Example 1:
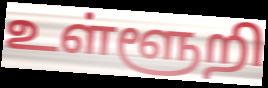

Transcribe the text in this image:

உள்ளூறி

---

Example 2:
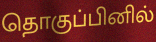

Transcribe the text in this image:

தொகுப்பினில்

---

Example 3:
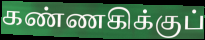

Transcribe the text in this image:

கண்ணகிக்குப்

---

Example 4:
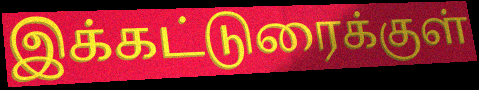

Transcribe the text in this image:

இக்கட்டுரைக்குள்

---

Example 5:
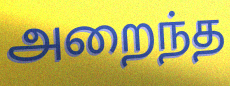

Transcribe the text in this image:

அறைந்த